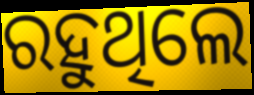
ରହୁଥିଲେ